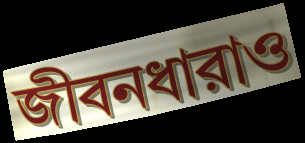
জীবনধারাও